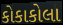
કોકાકોલા